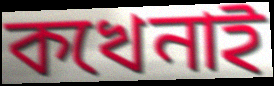
কখেনাই